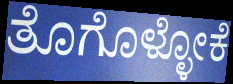
ತೊಗೊಳ್ಳೋಕೆ